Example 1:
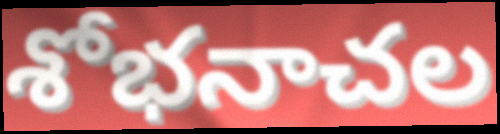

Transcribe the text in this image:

శోభనాచల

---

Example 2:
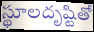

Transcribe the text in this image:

స్థూలదృష్టితో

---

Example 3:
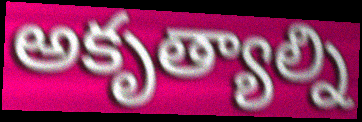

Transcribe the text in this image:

అకృత్యాల్ని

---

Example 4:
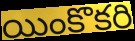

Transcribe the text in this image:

యింకొకరి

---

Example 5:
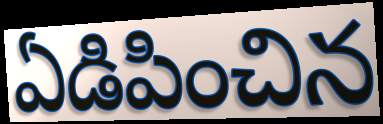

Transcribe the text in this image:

ఏడిపించిన